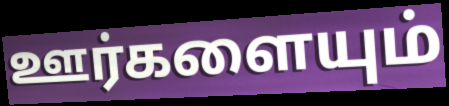
ஊர்களையும்